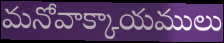
మనోవాక్కాయములు